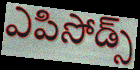
ఎపిసోడ్స్